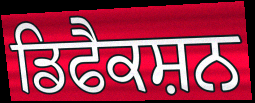
ਡਿਫੈਕਸ਼ਨ